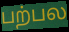
பற்பல